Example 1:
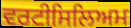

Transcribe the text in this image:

ਵਰਟੀਸਿਲਿਅਮ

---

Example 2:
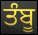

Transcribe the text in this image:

ਤੰਬੂ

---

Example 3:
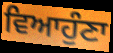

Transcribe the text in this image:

ਵਿਆਹੁੰਣਾ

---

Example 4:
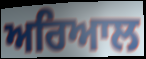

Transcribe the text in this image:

ਅਰਿਆਲ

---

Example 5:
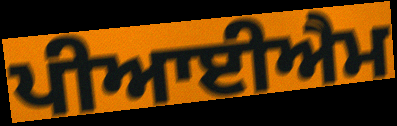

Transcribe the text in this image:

ਪੀਆਈਐਮ